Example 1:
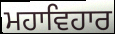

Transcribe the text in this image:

ਮਹਾਵਿਹਾਰ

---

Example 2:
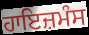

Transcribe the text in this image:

ਹਾਇਜ਼ਮੰਸ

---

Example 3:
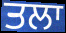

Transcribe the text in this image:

ਤਲਾ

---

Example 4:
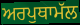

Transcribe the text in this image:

ਅਰਪੁਥਾਮੱਲ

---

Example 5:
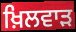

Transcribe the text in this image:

ਖ਼ਿਲਵਾੜ